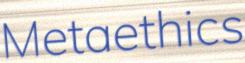
Metaethics